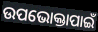
ଉପଭୋକ୍ତାପାଇଁ